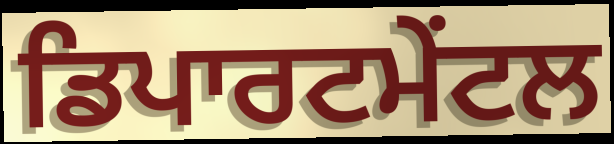
ਡਿਪਾਰਟਮੇਂਟਲ